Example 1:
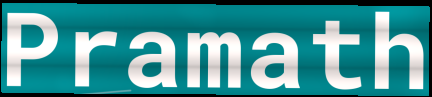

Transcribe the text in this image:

Pramath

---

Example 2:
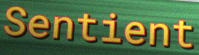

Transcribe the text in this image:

Sentient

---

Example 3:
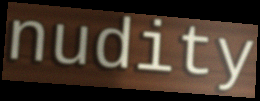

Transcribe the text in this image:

nudity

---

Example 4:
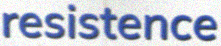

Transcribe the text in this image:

resistence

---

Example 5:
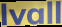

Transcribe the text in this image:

Ivall